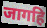
जागहि